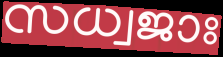
സധ്വജാഃ